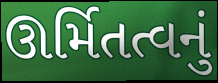
ઊર્મિતત્વનું